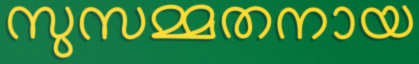
സുസമ്മതനായ